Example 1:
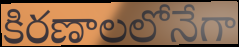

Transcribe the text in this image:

కిరణాలలోనేగా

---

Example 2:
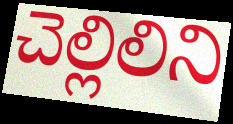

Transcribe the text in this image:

చెల్లిలిని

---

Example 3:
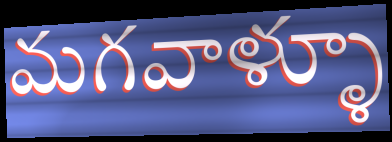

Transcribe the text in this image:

మగవాళ్ళూ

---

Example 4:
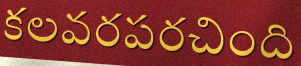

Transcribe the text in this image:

కలవరపరచింది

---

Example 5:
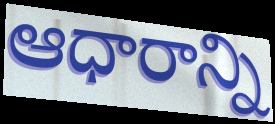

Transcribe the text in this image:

ఆధారాన్ని